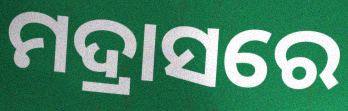
ମଦ୍ରାସରେ